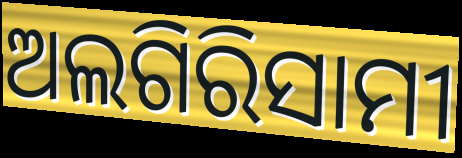
ଅଲଗିରିସାମୀ